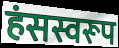
हंसस्वरूप